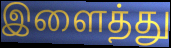
இளைத்து